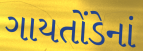
ગાયતોંડેનાં